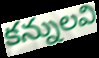
కన్నులవి